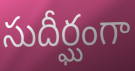
సుదీర్ఘంగా